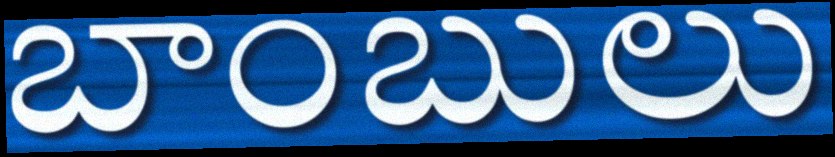
బాంబులు